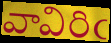
వావిరిఁ